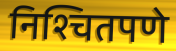
निश्चितपणे